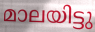
മാലയിട്ടു